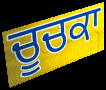
ਚੂਚਕਾ